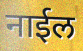
नाईल